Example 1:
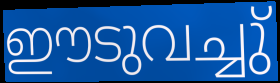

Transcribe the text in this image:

ഈടുവച്ചു്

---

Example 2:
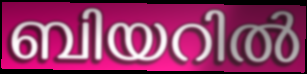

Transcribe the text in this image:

ബിയറിൽ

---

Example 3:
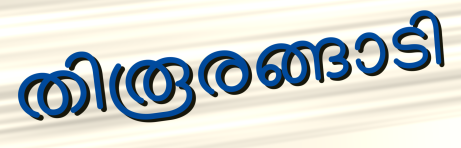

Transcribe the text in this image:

തിരൂരങ്ങാടി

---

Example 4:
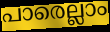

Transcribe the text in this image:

പാരെല്ലാം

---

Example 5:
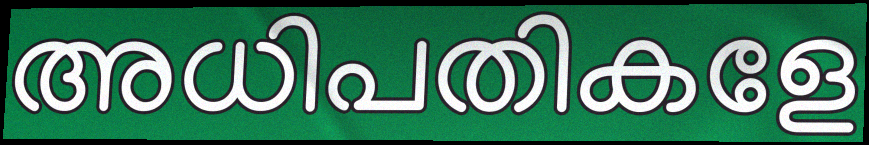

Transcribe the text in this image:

അധിപതികളേ